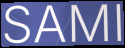
SAMI